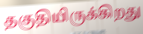
தகுதியிருக்கிறது